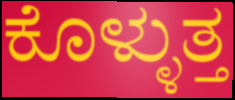
ಕೊಳ್ಳುತ್ತ